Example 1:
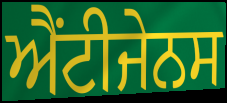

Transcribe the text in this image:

ਐਂਟੀਜੇਨਸ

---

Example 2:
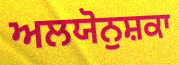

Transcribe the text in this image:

ਅਲਯੋਨੁਸ਼ਕਾ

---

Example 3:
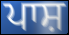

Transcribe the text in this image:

ਪਾਸ਼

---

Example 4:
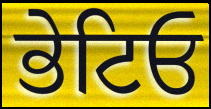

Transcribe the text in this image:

ਭੇਟਿਓ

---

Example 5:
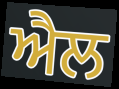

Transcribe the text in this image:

ਐਲ